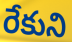
రేకుని